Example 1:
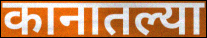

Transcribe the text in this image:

कानातल्या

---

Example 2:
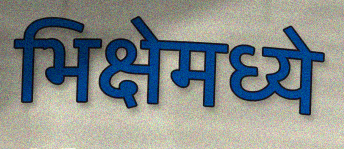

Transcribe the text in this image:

भिक्षेमध्ये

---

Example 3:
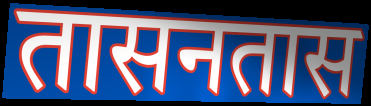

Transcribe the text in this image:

तासनतास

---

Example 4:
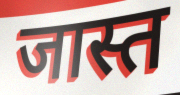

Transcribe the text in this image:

जास्त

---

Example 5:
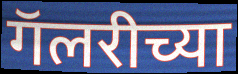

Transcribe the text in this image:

गॅलरीच्या